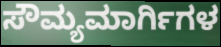
ಸೌಮ್ಯಮಾರ್ಗಿಗಳ